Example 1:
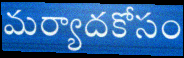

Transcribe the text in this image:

మర్యాదకోసం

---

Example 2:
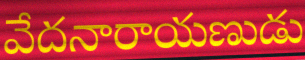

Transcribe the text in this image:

వేదనారాయణుడు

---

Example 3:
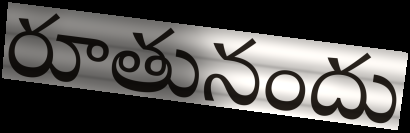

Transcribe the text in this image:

రూతునందు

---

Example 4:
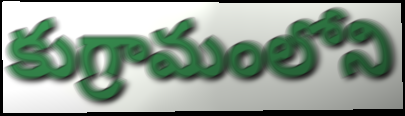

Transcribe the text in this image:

కుగ్రామంలోని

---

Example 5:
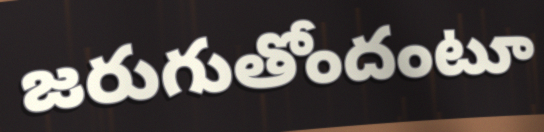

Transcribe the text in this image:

జరుగుతోందంటూ